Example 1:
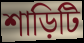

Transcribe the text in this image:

শাড়িটি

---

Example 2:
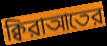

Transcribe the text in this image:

ক্বিরাআতের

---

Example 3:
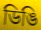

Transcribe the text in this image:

ডিঙি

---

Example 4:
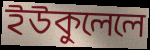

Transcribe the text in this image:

ইউকুলেলে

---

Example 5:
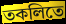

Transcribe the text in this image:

তকলিতে